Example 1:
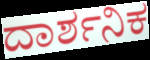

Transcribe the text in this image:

ದಾರ್ಶನಿಕ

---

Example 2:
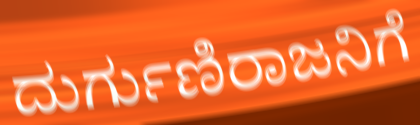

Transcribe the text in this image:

ದುರ್ಗುಣಿರಾಜನಿಗೆ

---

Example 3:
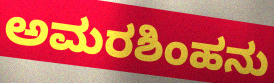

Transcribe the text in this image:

ಅಮರಶಿಂಹನು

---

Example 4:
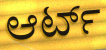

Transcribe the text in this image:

ಆರ್ಟ್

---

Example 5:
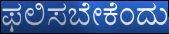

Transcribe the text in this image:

ಫಲಿಸಬೇಕೆಂದು